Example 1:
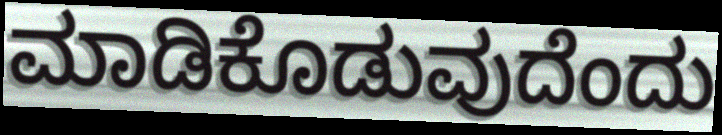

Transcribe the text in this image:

ಮಾಡಿಕೊಡುವುದೆಂದು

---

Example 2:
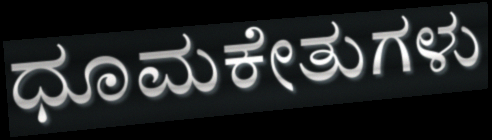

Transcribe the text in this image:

ಧೂಮಕೇತುಗಳು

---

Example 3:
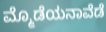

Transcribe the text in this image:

ಮ್ಮೊಡೆಯನಾವೆಡೆ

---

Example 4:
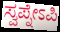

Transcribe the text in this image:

ಸ್ವಪ್ನೇಽಪಿ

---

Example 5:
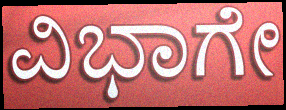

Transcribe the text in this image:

ವಿಭಾಗೇ